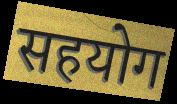
सहयोग